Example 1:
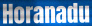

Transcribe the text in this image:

Horanadu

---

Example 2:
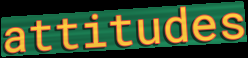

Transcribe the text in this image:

attitudes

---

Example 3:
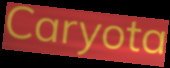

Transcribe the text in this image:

Caryota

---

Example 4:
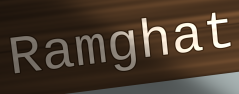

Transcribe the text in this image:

Ramghat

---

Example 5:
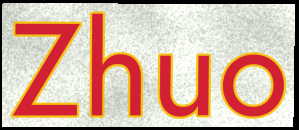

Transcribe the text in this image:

Zhuo